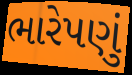
ભારેપણું